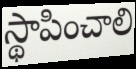
స్థాపించాలి